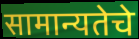
सामान्यतेचे